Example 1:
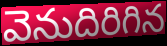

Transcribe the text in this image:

వెనుదిరిగిన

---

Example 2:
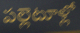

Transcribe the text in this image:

పల్లెటూళ్లో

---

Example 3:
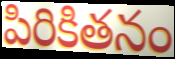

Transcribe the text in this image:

పిరికితనం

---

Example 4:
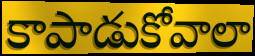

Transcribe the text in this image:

కాపాడుకోవాలా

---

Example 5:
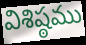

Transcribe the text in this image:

విశిష్ఠము